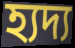
হ্যদ্য